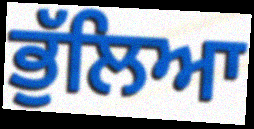
ਭੁੱਲਿਆ